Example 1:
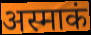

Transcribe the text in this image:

अस्माकं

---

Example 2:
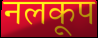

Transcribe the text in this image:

नलकूप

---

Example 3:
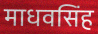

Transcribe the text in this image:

माधवसिंह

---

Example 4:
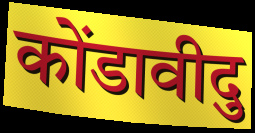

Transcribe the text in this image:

कोंडावीदु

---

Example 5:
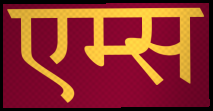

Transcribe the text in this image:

एम्‍स